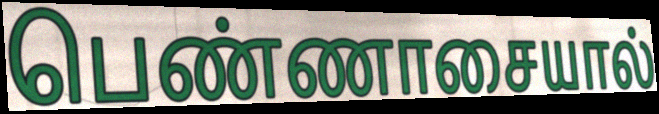
பெண்ணாசையால்